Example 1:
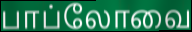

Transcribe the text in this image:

பாப்லோவை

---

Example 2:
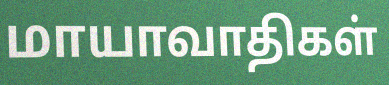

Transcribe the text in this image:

மாயாவாதிகள்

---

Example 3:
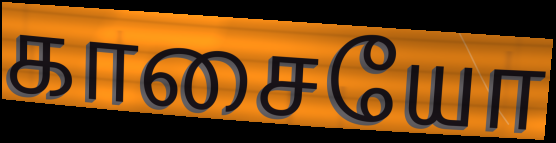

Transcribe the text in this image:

காசையோ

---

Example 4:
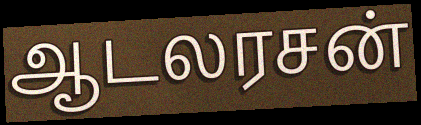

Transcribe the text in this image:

ஆடலரசன்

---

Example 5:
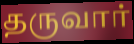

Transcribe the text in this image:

தருவார்